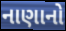
નાણાનો